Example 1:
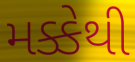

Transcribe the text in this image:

મક્કેથી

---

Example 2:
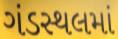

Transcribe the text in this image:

ગંડસ્થલમાં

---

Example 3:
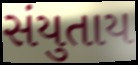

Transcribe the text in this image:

સંયુતાય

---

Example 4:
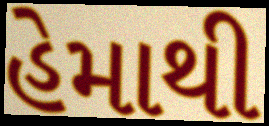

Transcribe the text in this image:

હેમાથી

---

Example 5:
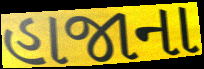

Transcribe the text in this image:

હાજાના